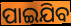
ପାଇଯିବ